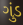
ગુંડ